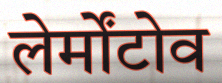
लेर्मोंटोव